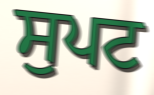
ਸੁਪਟ